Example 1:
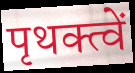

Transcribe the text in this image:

पृथक्त्वें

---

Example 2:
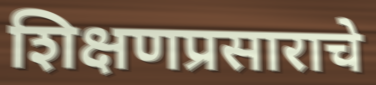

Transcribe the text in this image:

शिक्षणप्रसाराचे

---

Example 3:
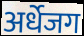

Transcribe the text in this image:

अर्धेजग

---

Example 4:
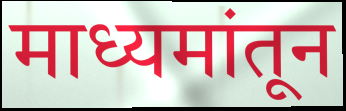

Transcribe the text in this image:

माध्यमांतून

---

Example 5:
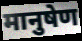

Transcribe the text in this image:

मानुषेण